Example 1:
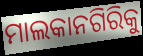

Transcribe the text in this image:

ମାଲକାନଗିରିକୁ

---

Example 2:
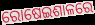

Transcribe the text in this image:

ରୋଷେଇଶାଳରେ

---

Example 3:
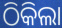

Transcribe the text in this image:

ଠିକିଲା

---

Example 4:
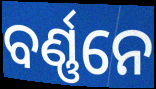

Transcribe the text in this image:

ବର୍ଣ୍ଣନେ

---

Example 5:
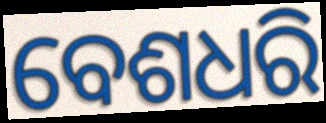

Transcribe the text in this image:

ବେଶଧରି